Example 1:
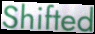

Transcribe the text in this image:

Shifted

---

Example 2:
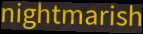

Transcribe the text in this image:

nightmarish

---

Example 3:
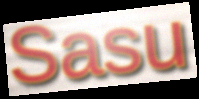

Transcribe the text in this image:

Sasu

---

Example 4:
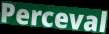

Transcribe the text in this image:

Perceval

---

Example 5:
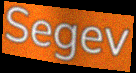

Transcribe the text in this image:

Segev